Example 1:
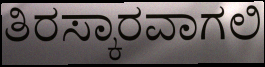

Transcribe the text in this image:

ತಿರಸ್ಕಾರವಾಗಲಿ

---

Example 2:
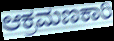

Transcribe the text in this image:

ಆಕ್ರಮಣಕಾರಿ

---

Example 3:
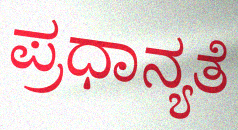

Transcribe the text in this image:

ಪ್ರಧಾನ್ಯತೆ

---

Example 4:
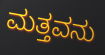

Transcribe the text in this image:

ಮತ್ತವನು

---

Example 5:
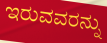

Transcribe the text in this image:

ಇರುವವರನ್ನು